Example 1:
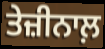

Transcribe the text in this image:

ਤੇਜ਼ੀਨਾਲ਼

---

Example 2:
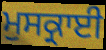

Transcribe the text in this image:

ਮੁਸਕ੍ਰਾਈ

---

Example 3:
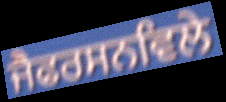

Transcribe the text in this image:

ਜੈਫਰਸਨਵਿਲੇ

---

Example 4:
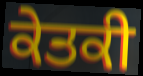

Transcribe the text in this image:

ਕੇਤਕੀ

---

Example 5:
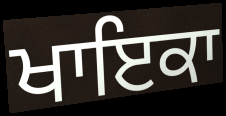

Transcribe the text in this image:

ਖਾਇਕਾ